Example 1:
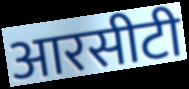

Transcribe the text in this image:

आरसीटी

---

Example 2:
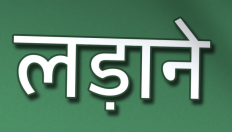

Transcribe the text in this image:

लड़ाने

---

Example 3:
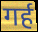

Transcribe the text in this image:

गर्ह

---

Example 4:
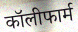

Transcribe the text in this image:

कॉलीफार्म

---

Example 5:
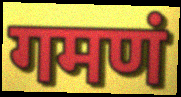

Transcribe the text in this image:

गमणं